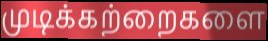
முடிக்கற்றைகளை